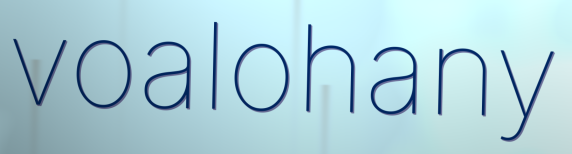
voalohany